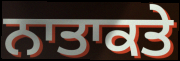
ਨਾਤਾਕਤੇ